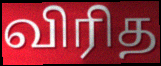
விரித